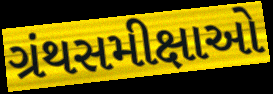
ગ્રંથસમીક્ષાઓ